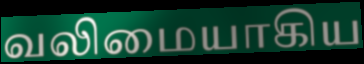
வலிமையாகிய